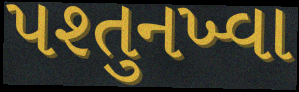
પશ્તુનખ્વા